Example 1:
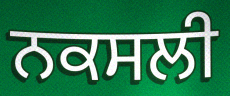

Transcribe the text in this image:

ਨਕਸਲੀ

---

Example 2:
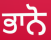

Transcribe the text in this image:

ਭਾਨੋ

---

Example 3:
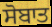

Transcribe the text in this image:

ਸੋਬਾਤ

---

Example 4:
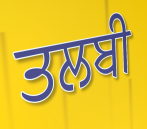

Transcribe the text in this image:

ਤਲਬੀ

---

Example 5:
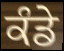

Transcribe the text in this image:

ਕੰਡੇ